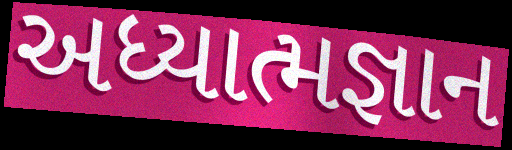
અધ્યાત્મજ્ઞાન